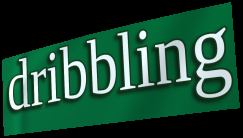
dribbling